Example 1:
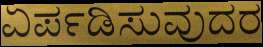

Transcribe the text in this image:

ಏರ್ಪಡಿಸುವುದರ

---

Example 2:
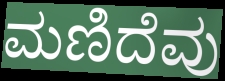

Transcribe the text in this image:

ಮಣಿದೆವು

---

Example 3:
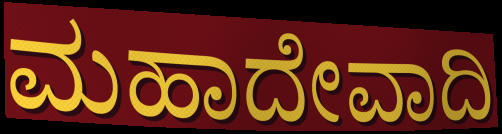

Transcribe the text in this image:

ಮಹಾದೇವಾದಿ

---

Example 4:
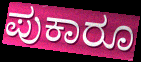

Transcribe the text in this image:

ಪುಕಾರೂ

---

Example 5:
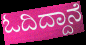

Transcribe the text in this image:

ಓದಿದ್ದಾನೆ